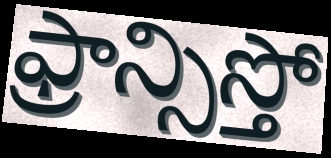
ఫ్రాన్సిస్తో